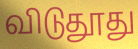
விடுதூது